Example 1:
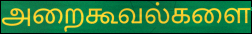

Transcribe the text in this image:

அறைகூவல்களை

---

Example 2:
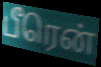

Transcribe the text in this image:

பீரென்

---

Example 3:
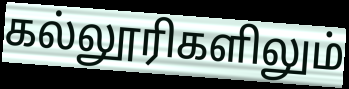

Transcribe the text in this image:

கல்லூரிகளிலும்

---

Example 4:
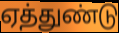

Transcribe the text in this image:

ஏத்துண்டு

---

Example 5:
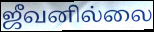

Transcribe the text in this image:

ஜீவனில்லை